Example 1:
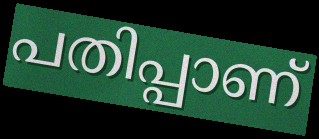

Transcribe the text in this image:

പതിപ്പാണ്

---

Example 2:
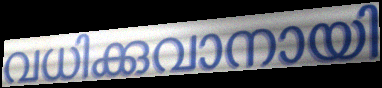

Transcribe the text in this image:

വധിക്കുവാനായി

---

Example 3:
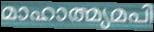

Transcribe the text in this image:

മാഹാത്മ്യമപി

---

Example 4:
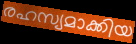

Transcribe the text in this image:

രഹസ്യമാക്കിയ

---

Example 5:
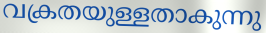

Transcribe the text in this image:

വക്രതയുള്ളതാകുന്നു